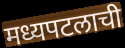
मध्यपटलाची